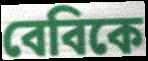
বেবিকে